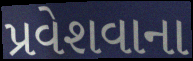
પ્રવેશવાના